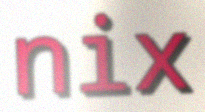
nix